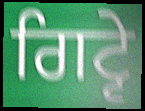
ਗਿਟ੍ਟੇ